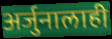
अर्जुनालाही